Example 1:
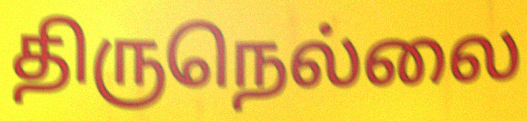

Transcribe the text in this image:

திருநெல்லை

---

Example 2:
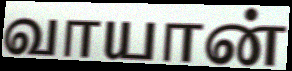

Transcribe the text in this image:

வாயான்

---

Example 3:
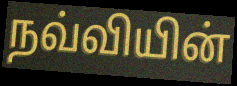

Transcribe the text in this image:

நவ்வியின்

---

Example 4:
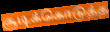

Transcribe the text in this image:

சூடிக்கொடுத்த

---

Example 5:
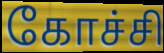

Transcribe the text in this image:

கோச்சி